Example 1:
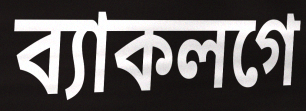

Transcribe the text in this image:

ব্যাকলগে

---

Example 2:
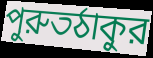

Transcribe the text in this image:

পুরুতঠাকুর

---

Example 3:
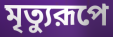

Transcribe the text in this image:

মৃত্যুরূপে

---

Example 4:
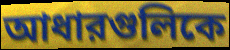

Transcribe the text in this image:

আধারগুলিকে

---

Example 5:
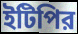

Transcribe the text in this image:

ইটিপির